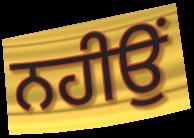
ਨਹੀਉਂ